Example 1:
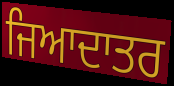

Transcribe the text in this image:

ਜਿਆਦਾਤਰ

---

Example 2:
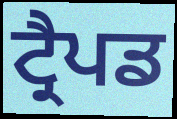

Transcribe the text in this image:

ਟ੍ਰੈਪਡ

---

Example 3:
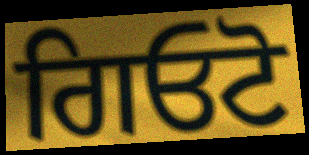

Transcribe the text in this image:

ਗਿਓਟੋ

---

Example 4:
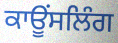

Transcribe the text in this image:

ਕਾਊਂਸਲਿੰਗ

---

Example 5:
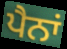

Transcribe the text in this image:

ਪੈਨਾਂ